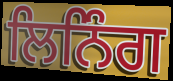
ਲਿਨਿੰਗ